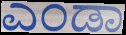
ಎಂಡಾ